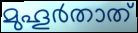
മുഹൂർതാത്